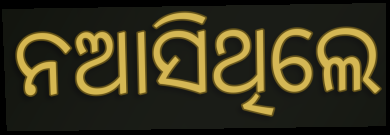
ନଆସିଥିଲେ